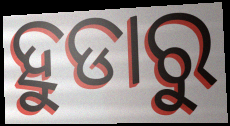
ହୁଡାରୁ